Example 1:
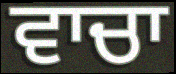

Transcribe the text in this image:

ਵਾਚਾ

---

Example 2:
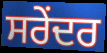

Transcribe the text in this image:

ਸਰੇਂਦਰ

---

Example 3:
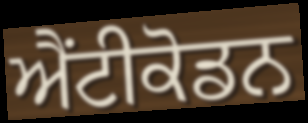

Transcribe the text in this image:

ਐਂਟੀਕੋਡਨ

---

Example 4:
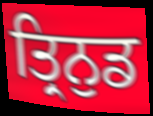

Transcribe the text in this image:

ਤ੍ਰਿਨੁਡ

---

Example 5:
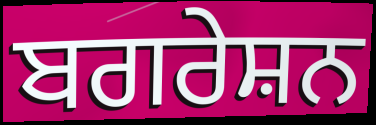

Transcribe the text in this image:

ਬਗਰੇਸ਼ਨ